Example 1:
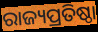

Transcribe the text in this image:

ରାଜ୍ୟପ୍ରତିଷ୍ଠା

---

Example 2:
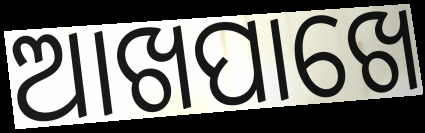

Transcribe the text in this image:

ଆଖପାଖେ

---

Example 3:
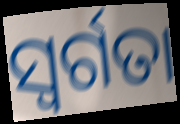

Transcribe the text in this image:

ସ୍ବର୍ଗତା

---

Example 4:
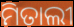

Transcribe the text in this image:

ମିତାଲୀ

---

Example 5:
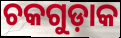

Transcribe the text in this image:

ଚକଗୁଡ଼ାକ